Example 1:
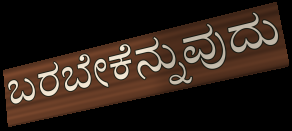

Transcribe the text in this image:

ಬರಬೇಕೆನ್ನುವುದು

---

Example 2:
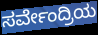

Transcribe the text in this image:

ಸರ್ವೇಂದ್ರಿಯ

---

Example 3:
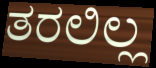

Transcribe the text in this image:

ತರಲಿಲ್ಲ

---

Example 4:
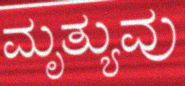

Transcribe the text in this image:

ಮೃತ್ಯುವು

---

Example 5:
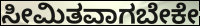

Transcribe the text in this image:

ಸೀಮಿತವಾಗಬೇಕೇ